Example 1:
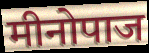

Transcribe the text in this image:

मीनोपाज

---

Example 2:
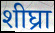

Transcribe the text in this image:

शीघ्रा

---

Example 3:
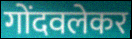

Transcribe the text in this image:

गोंदवलेकर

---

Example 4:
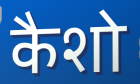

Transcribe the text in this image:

कैशो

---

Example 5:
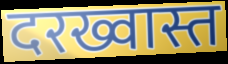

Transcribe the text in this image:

दरख्वास्त